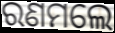
ରଣମଲେ